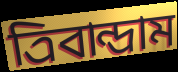
ত্রিবান্দ্রাম